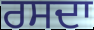
ਰਸਦਾ